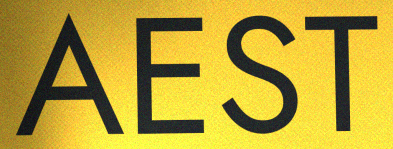
AEST